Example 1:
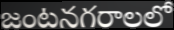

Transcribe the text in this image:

జంటనగరాలలో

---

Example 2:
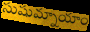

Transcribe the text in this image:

సుషుమ్నాయాం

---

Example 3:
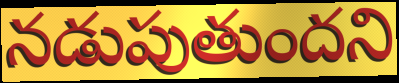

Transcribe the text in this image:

నడుపుతుందని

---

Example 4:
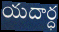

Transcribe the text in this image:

యదార్ధ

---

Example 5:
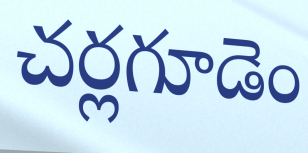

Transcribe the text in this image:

చర్లగూడెం